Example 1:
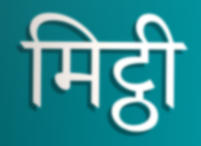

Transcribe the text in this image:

मिट्ठी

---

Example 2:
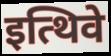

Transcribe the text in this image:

इत्थिवे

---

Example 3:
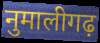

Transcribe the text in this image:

नुमालीगढ़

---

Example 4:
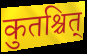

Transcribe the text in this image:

कुतश्चित्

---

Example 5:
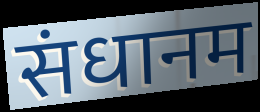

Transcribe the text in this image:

संधानम